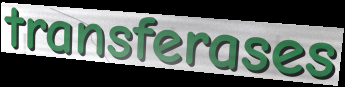
transferases